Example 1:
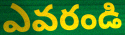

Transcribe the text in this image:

ఎవరండి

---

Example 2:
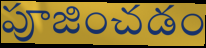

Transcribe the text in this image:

పూజించడం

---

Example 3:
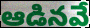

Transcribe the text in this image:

ఆడినవే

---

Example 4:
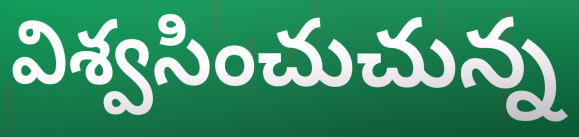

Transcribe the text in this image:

విశ్వసించుచున్న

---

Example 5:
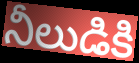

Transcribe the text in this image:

నీలుడికి